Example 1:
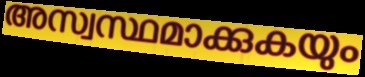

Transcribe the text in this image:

അസ്വസ്ഥമാക്കുകയും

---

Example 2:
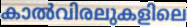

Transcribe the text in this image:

കാൽവിരലുകളിലെ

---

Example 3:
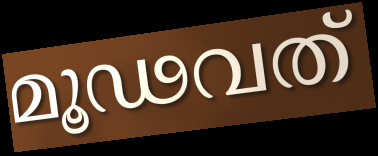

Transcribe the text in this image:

മൂഢവത്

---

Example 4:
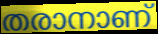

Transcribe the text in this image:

തരാനാണ്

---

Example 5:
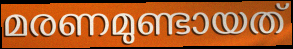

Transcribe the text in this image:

മരണമുണ്ടായത്